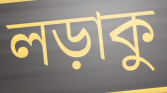
লড়াকু